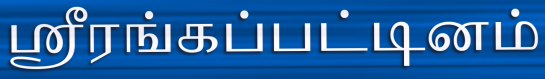
ஸ்ரீரங்கப்பட்டினம்